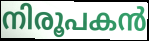
നിരൂപകൻ